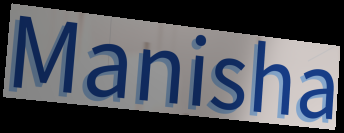
Manisha